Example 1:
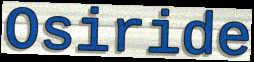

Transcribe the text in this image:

Osiride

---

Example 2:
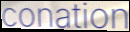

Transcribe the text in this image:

conation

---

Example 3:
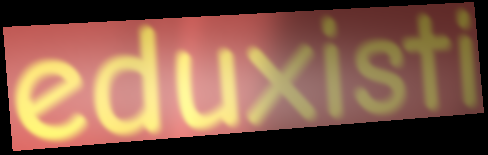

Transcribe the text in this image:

eduxisti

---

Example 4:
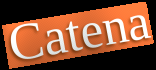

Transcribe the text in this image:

Catena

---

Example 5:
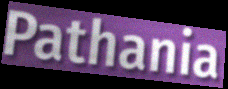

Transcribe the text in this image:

Pathania